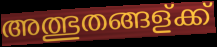
അത്ഭുതങ്ങള്ക്ക്